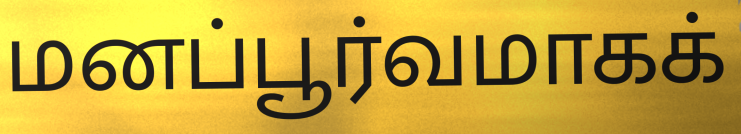
மனப்பூர்வமாகக்